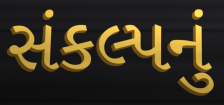
સંકલ્પનું